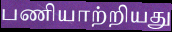
பணியாற்றியது